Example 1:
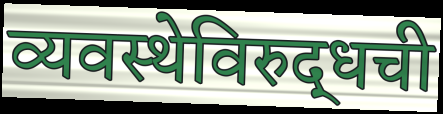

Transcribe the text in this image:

व्यवस्थेविरुद्धची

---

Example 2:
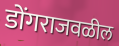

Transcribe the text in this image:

डोंगराजवळील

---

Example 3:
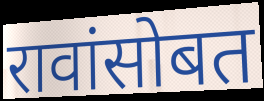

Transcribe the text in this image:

रावांसोबत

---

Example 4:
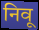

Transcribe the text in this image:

निवू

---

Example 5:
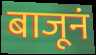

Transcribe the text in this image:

बाजूनं